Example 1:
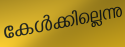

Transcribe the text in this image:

കേൾക്കില്ലെന്നു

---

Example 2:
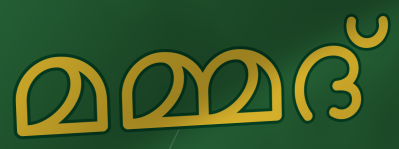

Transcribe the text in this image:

മമ്മദ്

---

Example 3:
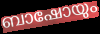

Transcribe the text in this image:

ബാഷോയും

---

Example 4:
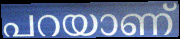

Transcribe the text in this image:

പറയാണ്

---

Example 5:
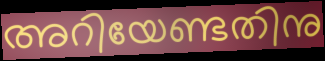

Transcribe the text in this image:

അറിയേണ്ടതിനു